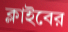
ক্লাইবের